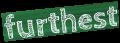
furthest